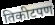
तिकीटपण